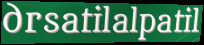
drsatilalpatil